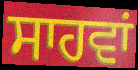
ਸਾਹਵਾਂ